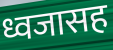
ध्वजासह